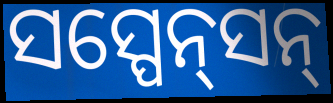
ସସ୍ପେନ୍‌ସନ୍